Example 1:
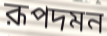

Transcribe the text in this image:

রূপদমন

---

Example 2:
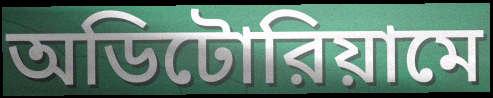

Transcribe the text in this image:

অডিটোরিয়ামে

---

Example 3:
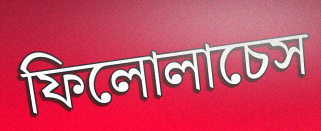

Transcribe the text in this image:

ফিলোলাচেস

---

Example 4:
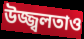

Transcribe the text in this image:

উজ্জ্বলতাও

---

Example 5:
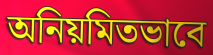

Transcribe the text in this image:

অনিয়মিতভাবে